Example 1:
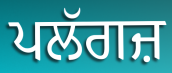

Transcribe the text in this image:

ਪਲੱਗਜ਼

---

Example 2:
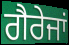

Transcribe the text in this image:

ਗੈਰੇਜਾਂ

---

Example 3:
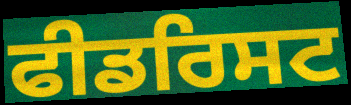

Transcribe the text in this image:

ਫੀਡਰਿਸਟ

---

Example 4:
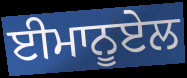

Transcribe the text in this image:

ਈਮਾਨੂਏਲ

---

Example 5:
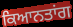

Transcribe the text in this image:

ਕਿਆਨਤਾਂਗ